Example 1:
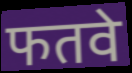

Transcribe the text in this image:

फतवे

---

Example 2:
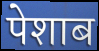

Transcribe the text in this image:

पेशाब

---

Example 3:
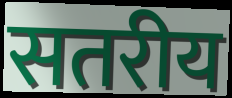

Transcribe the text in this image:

सतरीय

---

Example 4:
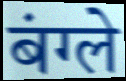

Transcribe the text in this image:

बंग्ले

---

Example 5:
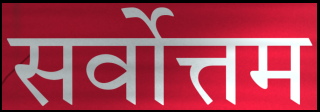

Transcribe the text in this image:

सर्वोत्तम